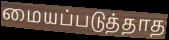
மையப்படுத்தாத